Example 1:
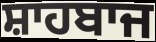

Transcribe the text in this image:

ਸ਼ਾਹਬਾਜ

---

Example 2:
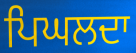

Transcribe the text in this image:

ਪਿਘਲਦਾ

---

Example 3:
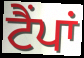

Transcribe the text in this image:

ਟੈਂਪਾਂ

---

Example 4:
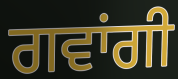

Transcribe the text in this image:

ਗਵਾਂਗੀ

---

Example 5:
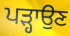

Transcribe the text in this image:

ਪੜ੍ਹਾਉਣ